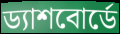
ড্যাশবোর্ডে